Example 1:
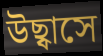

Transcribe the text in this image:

উছ্বাসে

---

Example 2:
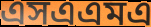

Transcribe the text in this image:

এসএএমএ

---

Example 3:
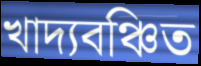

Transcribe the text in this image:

খাদ্যবঞ্চিত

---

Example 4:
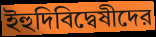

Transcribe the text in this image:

ইহুদিবিদ্বেষীদের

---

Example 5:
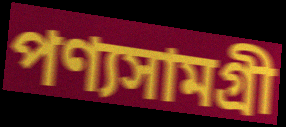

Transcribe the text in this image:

পণ্যসামগ্রী